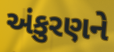
અંકુરણને